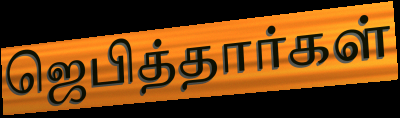
ஜெபித்தார்கள்